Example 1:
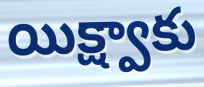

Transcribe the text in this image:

యిక్ష్వాకు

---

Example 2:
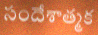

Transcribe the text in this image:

సందేశాత్మక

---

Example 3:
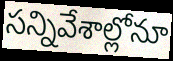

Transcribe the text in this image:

సన్నివేశాల్లోనూ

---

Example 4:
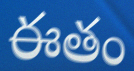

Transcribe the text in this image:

ఈతం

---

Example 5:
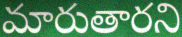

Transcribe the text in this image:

మారుతారని